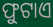
ଫୁଟାଏ